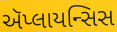
ઍપ્લાયન્સિસ